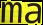
ma